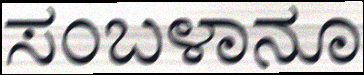
ಸಂಬಳಾನೂ